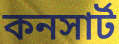
কনসার্ট